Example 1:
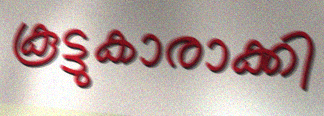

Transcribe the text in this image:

കൂട്ടുകാരാക്കി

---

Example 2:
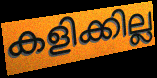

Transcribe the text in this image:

കളിക്കില്ല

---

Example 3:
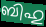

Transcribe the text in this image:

ബിഹു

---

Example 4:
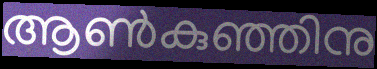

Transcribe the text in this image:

ആൺകുഞ്ഞിനു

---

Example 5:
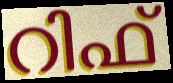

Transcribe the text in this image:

റിഫ്